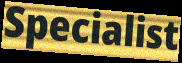
Specialist